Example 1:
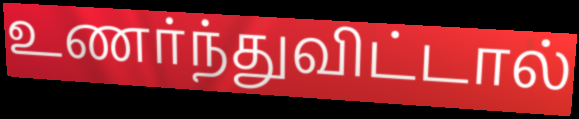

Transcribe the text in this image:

உணர்ந்துவிட்டால்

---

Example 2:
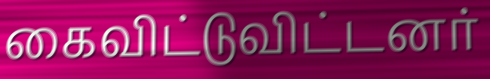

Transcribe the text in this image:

கைவிட்டுவிட்டனர்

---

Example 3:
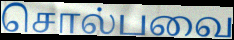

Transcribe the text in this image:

சொல்பவை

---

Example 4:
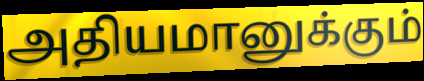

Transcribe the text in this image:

அதியமானுக்கும்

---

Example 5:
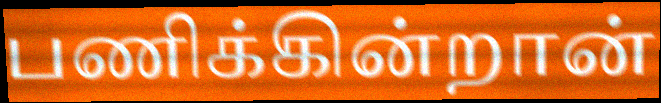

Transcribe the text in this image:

பணிக்கின்றான்